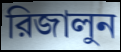
রিজালুন